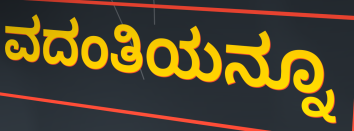
ವದಂತಿಯನ್ನೂ